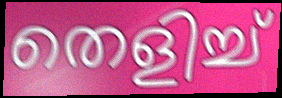
തെളിച്ച്